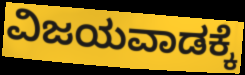
ವಿಜಯವಾಡಕ್ಕೆ